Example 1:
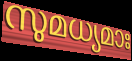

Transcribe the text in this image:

സുമധ്യമാഃ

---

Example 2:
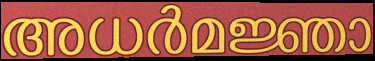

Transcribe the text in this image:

അധർമജ്ഞാ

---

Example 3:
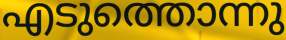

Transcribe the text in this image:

എടുത്തൊന്നു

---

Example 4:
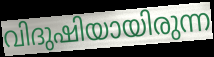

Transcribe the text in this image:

വിദുഷിയായിരുന്ന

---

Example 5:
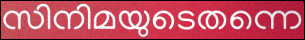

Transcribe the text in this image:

സിനിമയുടെതന്നെ